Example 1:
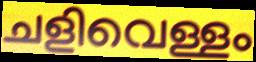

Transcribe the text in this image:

ചളിവെള്ളം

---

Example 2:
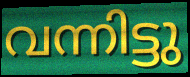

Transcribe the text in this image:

വന്നിട്ടു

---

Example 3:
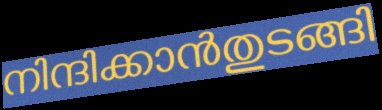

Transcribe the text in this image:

നിന്ദിക്കാൻതുടങ്ങി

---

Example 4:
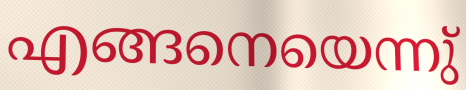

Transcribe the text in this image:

എങ്ങനെയെന്നു്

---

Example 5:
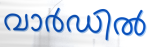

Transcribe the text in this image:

വാർഡിൽ